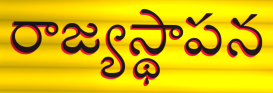
రాజ్యస్థాపన